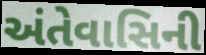
અંતેવાસિની